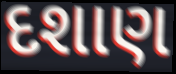
દશાણ